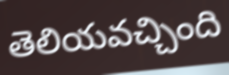
తెలియవచ్చింది